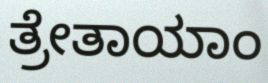
ತ್ರೇತಾಯಾಂ